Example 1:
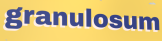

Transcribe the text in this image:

granulosum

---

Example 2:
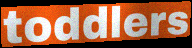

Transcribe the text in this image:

toddlers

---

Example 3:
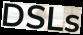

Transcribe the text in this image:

DSLs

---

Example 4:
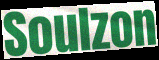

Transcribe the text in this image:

Soulzon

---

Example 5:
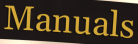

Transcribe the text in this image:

Manuals